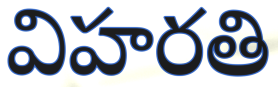
విహరతి